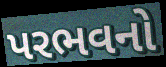
પરભવનો